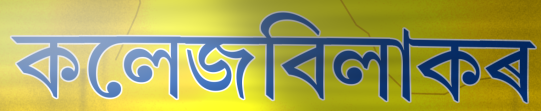
কলেজবিলাকৰ